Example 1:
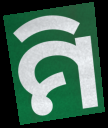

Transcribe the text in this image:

ମି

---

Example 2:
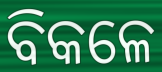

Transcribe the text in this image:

ବିକଳେ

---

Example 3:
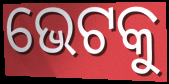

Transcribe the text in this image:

ଭେଟକୁ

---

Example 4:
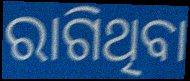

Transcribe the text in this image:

ରାଗିଥିବା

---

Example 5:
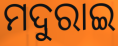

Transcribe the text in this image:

ମଦୁରାଇ